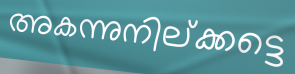
അകന്നുനില്ക്കട്ടെ